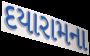
દયારામના